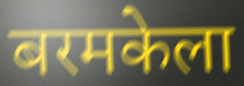
बरमकेला